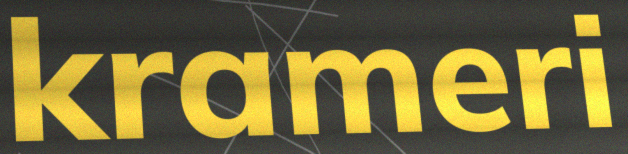
krameri